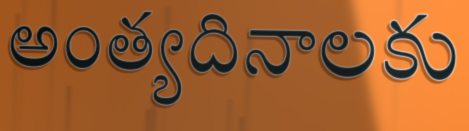
అంత్యదినాలకు